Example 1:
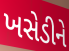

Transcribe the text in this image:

ખસેડીને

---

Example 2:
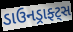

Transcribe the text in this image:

ડાઉનડ્રાફ્ટ્સ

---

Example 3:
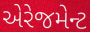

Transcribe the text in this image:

એરેજમેન્ટ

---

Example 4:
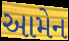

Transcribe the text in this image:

આમેન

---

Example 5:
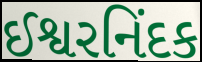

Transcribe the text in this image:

ઈશ્વરનિંદક